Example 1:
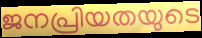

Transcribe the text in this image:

ജനപ്രിയതയുടെ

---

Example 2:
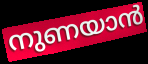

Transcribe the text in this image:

നുണയാൻ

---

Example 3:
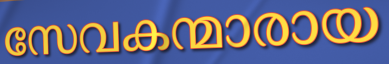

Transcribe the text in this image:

സേവകന്മാരായ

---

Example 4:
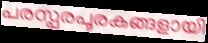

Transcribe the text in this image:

പരസ്പരപൂരകങ്ങളായി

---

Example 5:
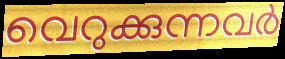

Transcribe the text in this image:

വെറുക്കുന്നവർ